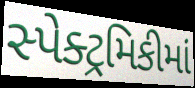
સ્પેક્ટ્રમિકીમાં